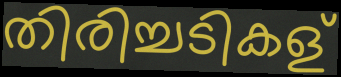
തിരിച്ചടികള്